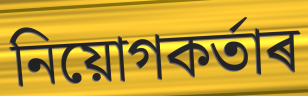
নিয়োগকৰ্তাৰ